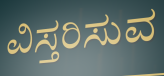
ವಿಸ್ತರಿಸುವ